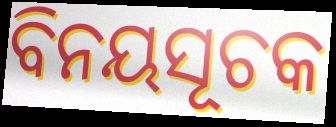
ବିନୟସୂଚକ